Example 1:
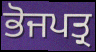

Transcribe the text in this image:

ਭੋਜਪਤ੍ਰ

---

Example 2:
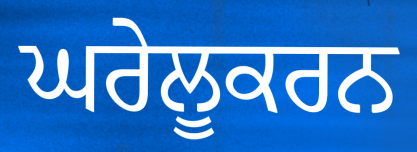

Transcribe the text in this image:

ਘਰੇਲੂਕਰਨ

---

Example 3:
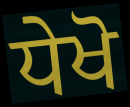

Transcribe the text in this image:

ਧੇਖੋ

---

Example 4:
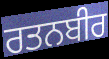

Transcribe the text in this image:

ਰਤਨਬੀਰ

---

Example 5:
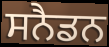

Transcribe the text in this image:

ਸਨੈਡਨ